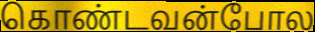
கொண்டவன்போல